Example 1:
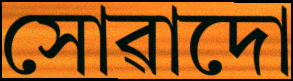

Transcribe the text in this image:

সোৱাদো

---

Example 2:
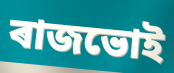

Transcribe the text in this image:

ৰাজভোই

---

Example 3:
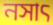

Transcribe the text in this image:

নসাৎ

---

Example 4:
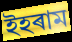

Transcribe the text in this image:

ইহৰাম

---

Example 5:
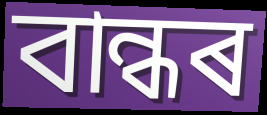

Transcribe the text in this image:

বান্ধৰ